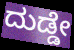
ದುಡ್ಡೇ